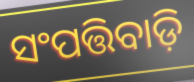
ସଂପତ୍ତିବାଡ଼ି